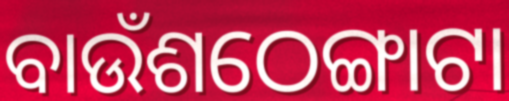
ବାଉଁଶଠେଙ୍ଗାଟା